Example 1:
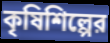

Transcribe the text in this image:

কৃষিশিল্পের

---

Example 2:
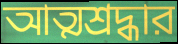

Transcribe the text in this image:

আত্মশ্রদ্ধার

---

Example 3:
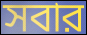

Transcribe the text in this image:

সবার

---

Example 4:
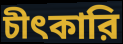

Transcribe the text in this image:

চীৎকারি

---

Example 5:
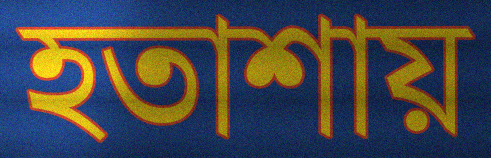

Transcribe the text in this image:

হতাশায়